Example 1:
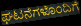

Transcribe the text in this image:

ಘಟನೆಗಳೊಂದಿಗೆ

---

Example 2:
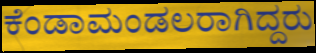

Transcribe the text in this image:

ಕೆಂಡಾಮಂಡಲರಾಗಿದ್ದರು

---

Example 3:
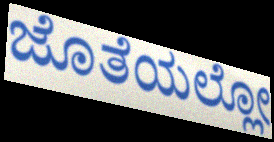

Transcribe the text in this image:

ಜೊತೆಯಲ್ಲೋ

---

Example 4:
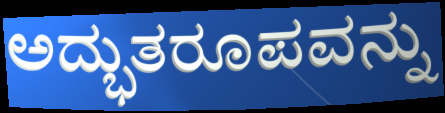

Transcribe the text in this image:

ಅದ್ಭುತರೂಪವನ್ನು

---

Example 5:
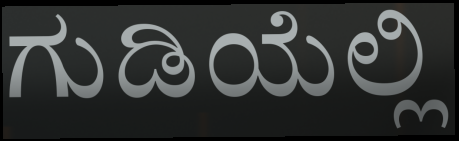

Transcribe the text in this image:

ಗುಡಿಯೆಲ್ಲಿ